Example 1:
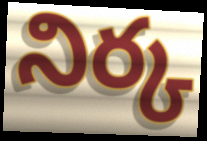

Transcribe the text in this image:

నిర్క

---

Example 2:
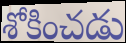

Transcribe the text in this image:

శోకించడు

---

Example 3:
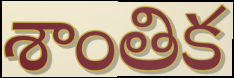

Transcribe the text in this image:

శాంతిక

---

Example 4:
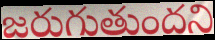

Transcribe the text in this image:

జరుగుతుందని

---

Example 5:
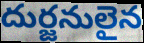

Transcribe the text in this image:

దుర్జనులైన